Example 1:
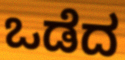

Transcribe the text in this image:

ಒಡೆದ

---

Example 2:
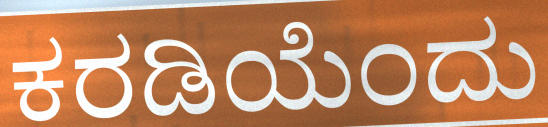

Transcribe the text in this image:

ಕರಡಿಯೆಂದು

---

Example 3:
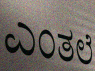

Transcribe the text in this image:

ಎಂತಲೆ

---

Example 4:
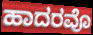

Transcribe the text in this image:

ಹಾದರವೊ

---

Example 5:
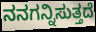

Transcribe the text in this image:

ನನಗನ್ನಿಸುತ್ತದೆ